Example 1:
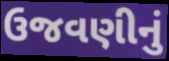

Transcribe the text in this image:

ઉજવણીનું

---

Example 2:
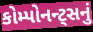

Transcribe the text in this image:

કોમ્પોનન્ટ્સનું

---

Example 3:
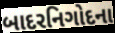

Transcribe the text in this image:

બાદરનિગોદના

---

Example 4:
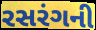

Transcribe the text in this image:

રસરંગની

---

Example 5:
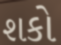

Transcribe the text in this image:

શકો